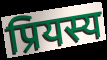
प्रियस्य